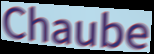
Chaube